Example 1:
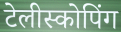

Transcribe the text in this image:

टेलीस्कोपिंग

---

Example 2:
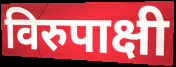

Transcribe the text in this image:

विरुपाक्षी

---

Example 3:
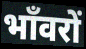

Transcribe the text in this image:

भाँवरों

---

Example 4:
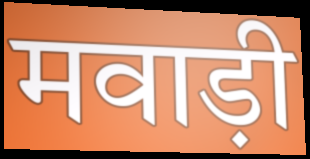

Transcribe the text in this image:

मवाड़ी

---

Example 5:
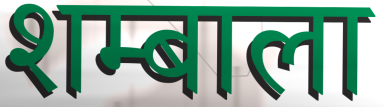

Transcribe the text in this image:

शम्बाला